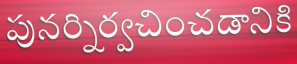
పునర్నిర్వచించడానికి